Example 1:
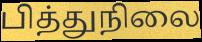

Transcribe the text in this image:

பித்துநிலை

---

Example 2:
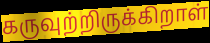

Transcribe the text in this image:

கருவுற்றிருக்கிறாள்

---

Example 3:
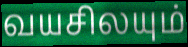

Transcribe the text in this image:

வயசிலயும்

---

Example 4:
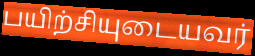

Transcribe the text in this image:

பயிற்சியுடையவர்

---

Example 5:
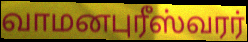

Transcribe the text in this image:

வாமனபுரீஸ்வரர்